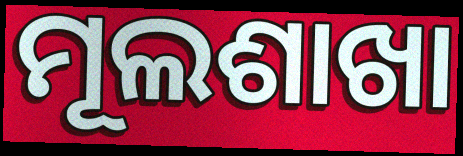
ମୂଲଶାଖା